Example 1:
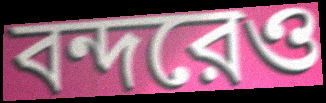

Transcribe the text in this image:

বন্দরেও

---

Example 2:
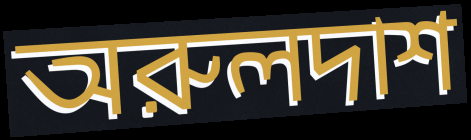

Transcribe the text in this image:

অরুলদাশ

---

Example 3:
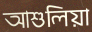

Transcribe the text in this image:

আশুলিয়া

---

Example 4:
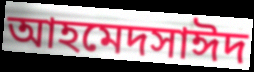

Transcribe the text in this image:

আহমেদসাঈদ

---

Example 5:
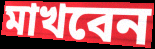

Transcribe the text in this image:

মাখবেন